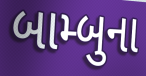
બામ્બુના